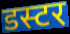
डस्टर